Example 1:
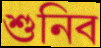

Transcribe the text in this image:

শুনিব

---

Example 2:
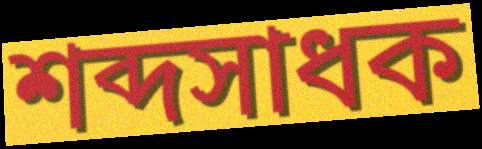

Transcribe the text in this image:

শব্দসাধক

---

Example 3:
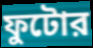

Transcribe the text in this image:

ফুটোর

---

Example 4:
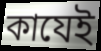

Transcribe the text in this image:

কাযেই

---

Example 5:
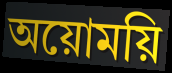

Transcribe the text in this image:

অয়োময়ি